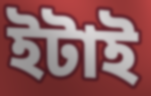
ইটাই